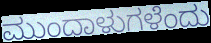
ಮುಂದಾಳುಗಳೆಂದು